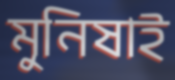
মুনিষাই